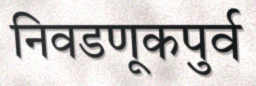
निवडणूकपुर्व